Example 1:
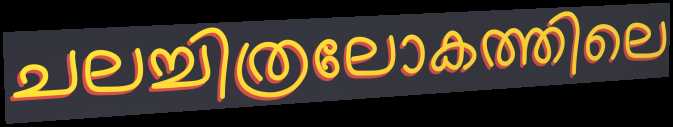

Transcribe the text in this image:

ചലച്ചിത്രലോകത്തിലെ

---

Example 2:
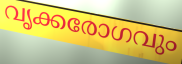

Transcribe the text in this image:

വൃക്കരോഗവും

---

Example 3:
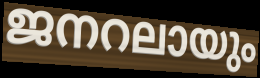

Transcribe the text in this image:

ജനറലായും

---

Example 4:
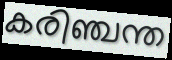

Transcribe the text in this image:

കരിഞ്ചന്ത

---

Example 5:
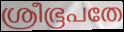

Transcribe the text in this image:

ശ്രീഭൂപതേ